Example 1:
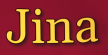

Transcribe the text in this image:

Jina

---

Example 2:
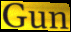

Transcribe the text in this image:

Gun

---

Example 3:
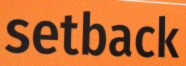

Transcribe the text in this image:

setback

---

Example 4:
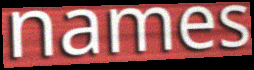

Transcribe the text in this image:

names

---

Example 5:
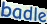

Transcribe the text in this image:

badle